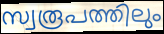
സ്വരൂപത്തിലും